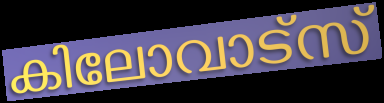
കിലോവാട്സ്